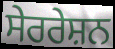
ਸੇਰਰੇਸ਼ਨ